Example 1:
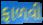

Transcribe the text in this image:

ફાળવી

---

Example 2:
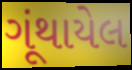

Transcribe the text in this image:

ગૂંથાયેલ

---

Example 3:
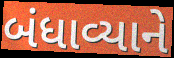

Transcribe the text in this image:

બંધાવ્યાને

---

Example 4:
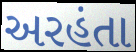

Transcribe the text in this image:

અરહંતા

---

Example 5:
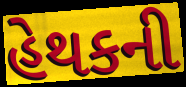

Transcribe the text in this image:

હેથકની